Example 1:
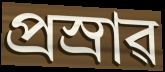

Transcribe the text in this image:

প্ৰস্ৰাৱ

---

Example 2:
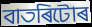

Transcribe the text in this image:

বাতৰিটোৰ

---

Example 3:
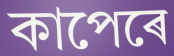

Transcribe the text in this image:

কাপেৰে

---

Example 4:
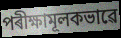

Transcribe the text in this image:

পৰীক্ষামূলকভাৱে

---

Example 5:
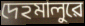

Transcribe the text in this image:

দেহমালুৱে